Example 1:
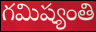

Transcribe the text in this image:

గమిష్యంతి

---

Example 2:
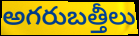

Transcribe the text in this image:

అగరుబత్తీలు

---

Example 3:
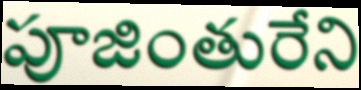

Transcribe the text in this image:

పూజింతురేని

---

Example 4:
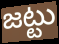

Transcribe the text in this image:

జట్టు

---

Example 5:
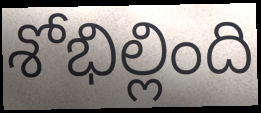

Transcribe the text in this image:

శోభిల్లింది